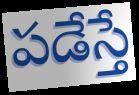
పడేస్తే